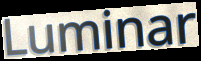
Luminar